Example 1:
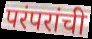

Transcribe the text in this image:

परंपरांची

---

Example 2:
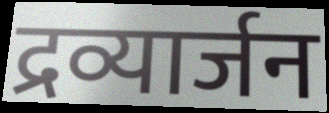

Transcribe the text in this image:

द्रव्यार्जन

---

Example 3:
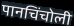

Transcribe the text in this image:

पानचिंचोली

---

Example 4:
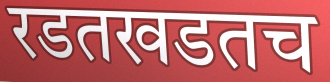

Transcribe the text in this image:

रडतखडतच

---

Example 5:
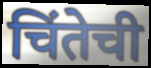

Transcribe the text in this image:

चिंतेची